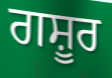
ਗਸ਼ੂਰ